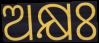
ଅକ୍ଷଃ